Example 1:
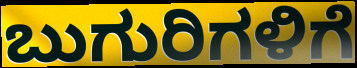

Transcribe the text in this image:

ಬುಗುರಿಗಳಿಗೆ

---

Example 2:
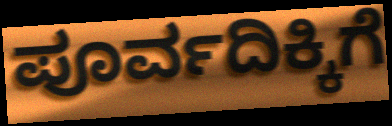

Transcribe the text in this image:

ಪೂರ್ವದಿಕ್ಕಿಗೆ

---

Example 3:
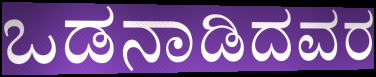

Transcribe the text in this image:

ಒಡನಾಡಿದವರ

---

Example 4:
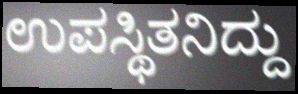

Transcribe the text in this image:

ಉಪಸ್ಥಿತನಿದ್ದು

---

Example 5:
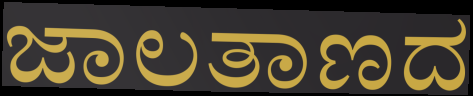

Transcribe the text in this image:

ಜಾಲತಾಣದ